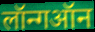
लॉन्गऑन